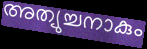
അത്യുച്ചനാകും